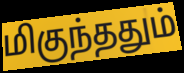
மிகுந்ததும்